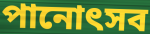
পানোৎসব